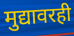
मुद्यावरही